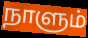
நாளும்